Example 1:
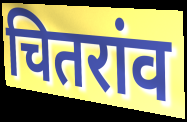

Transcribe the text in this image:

चितरांव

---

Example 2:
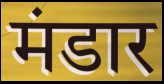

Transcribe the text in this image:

मंडार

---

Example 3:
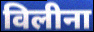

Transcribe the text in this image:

विलीना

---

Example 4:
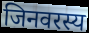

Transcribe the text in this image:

जिनवरस्य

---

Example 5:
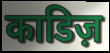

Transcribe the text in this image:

काडिज़